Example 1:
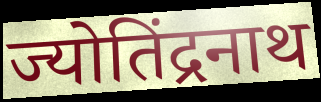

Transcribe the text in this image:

ज्योतिंद्रनाथ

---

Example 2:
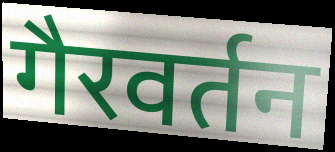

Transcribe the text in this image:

गैरवर्तन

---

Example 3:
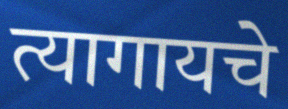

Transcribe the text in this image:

त्यागायचे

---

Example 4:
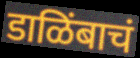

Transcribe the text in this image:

डाळिंबाचं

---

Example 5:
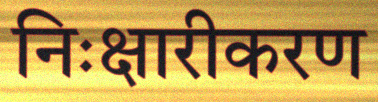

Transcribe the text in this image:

निःक्षारीकरण